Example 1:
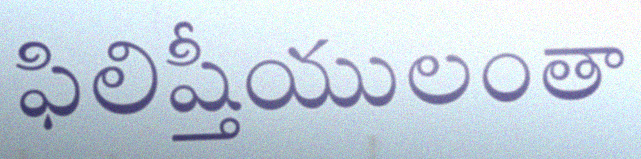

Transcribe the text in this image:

ఫిలిష్తీయులంతా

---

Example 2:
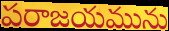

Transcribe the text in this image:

పరాజయమును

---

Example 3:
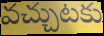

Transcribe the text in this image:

వచ్చుటకు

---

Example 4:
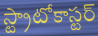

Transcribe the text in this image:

స్ట్రాటోకాస్టర్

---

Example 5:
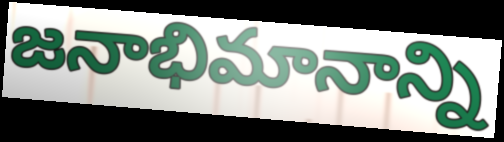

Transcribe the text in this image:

జనాభిమానాన్ని